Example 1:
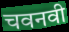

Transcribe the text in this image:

चवनवी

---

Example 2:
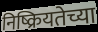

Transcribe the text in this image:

निष्क्रियतेच्या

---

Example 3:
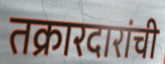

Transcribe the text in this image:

तक्रारदारांची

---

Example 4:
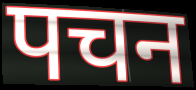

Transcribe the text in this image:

पचन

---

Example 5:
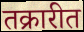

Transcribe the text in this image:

तक्रारीत